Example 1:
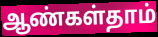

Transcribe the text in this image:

ஆண்கள்தாம்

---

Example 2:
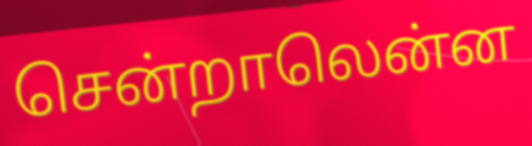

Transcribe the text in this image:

சென்றாலென்ன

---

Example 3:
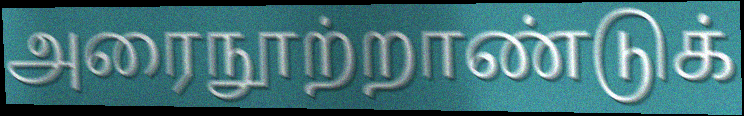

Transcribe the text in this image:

அரைநூற்றாண்டுக்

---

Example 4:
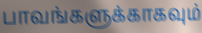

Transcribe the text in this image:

பாவங்களுக்காகவும்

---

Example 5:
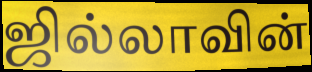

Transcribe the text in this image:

ஜில்லாவின்